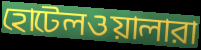
হোটেলওয়ালারা